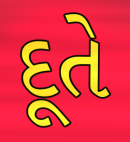
દૂતે